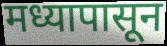
मध्यापासून